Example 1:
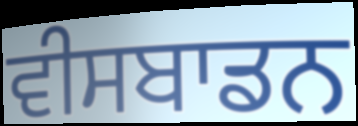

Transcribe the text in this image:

ਵੀਸਬਾਡਨ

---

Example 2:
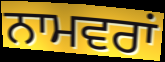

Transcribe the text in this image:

ਨਾਮਵਰਾਂ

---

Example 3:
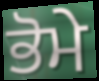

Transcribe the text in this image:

ਭੋਮੇ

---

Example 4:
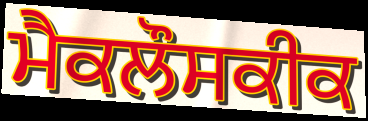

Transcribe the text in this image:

ਮੈਕਲੌਸਕੀਕ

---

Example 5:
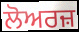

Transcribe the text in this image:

ਲੋਅਰਜ਼